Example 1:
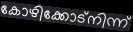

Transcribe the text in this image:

കോഴിക്കോട്നിന്ന്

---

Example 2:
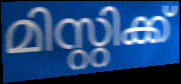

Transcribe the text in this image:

മിസ്റ്റിക്ക്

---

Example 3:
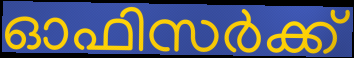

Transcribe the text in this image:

ഓഫിസർക്ക്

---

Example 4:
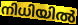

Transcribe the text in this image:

നിധിയിൽ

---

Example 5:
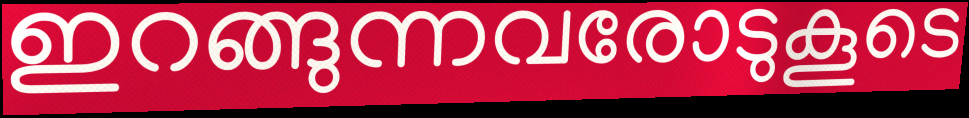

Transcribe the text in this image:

ഇറങ്ങുന്നവരോടുകൂടെ